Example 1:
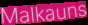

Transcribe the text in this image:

Malkauns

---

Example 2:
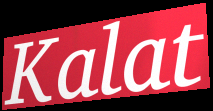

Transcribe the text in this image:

Kalat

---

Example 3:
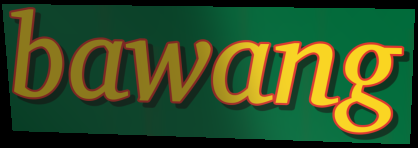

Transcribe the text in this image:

bawang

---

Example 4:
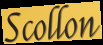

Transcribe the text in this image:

Scollon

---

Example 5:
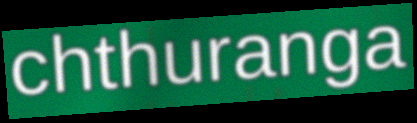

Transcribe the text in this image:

chthuranga